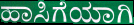
ಹಾಸಿಗೆಯಾಗಿ